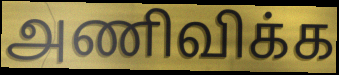
அணிவிக்க